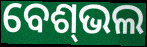
ବେଶ୍‌ଭଲ